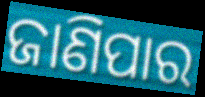
ଜାଣିପାର